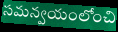
సమన్వయంలోంచి